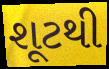
શૂટથી